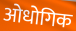
ओधोगिक